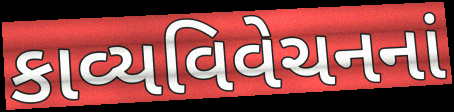
કાવ્યવિવેચનનાં